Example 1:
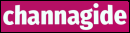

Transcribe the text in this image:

channagide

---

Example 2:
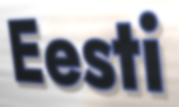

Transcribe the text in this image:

Eesti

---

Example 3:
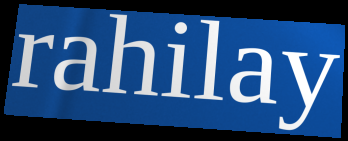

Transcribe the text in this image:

rahilay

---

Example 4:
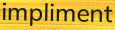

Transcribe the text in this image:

impliment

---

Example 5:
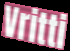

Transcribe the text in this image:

Vritti